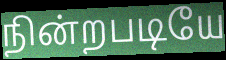
நின்றபடியே